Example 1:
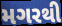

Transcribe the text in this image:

મગરથી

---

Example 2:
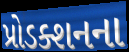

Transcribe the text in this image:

પ્રોડક્શનના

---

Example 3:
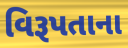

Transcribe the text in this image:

વિરૂપતાના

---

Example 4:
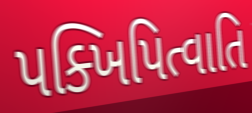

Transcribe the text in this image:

પક્ખિપિત્વાતિ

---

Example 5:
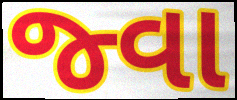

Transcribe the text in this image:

જ્વા